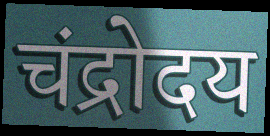
चंद्रोदय